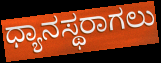
ಧ್ಯಾನಸ್ಥರಾಗಲು